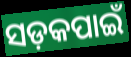
ସଡ଼କପାଇଁ